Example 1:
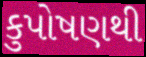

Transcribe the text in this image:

કુપોષણથી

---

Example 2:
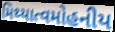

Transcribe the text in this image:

મિથ્યાત્વમોહનીય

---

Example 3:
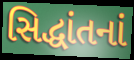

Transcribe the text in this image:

સિદ્ધાંતનાં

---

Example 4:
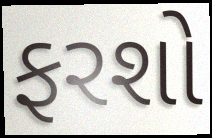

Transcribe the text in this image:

ફરશો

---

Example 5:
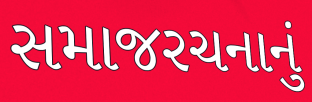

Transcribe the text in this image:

સમાજરચનાનું